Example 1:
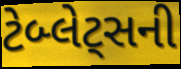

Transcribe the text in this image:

ટેબ્લેટ્સની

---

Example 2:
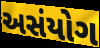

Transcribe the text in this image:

અસંયોગ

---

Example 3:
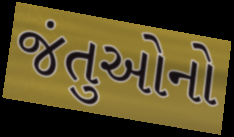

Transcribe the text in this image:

જંતુઓનો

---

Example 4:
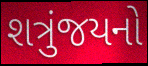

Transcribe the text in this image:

શત્રુંજયનો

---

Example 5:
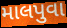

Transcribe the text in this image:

માલપુવા